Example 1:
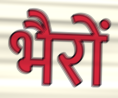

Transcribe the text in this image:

भैरों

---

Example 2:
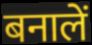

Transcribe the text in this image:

बनालें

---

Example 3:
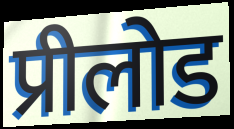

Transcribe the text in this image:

प्रीलोड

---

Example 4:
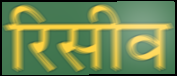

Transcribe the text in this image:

रिसीव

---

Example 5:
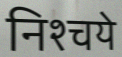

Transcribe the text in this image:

निश्चये